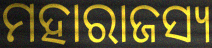
ମହାରାଜସ୍ୟ